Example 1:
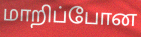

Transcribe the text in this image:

மாறிப்போன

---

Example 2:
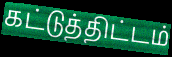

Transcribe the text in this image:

கட்டுத்திட்டம்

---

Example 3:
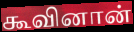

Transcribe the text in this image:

கூவினான்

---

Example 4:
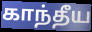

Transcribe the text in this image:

காந்தீய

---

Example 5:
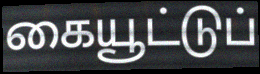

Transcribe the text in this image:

கையூட்டுப்